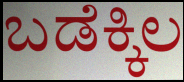
ಬಡೆಕ್ಕಿಲ